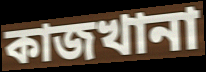
কাজখানা